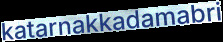
katarnakkadamabri